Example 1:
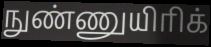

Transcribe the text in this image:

நுண்ணுயிரிக்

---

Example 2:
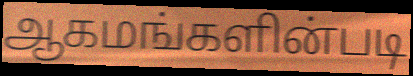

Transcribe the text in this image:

ஆகமங்களின்படி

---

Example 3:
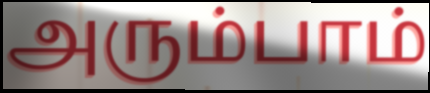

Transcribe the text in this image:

அரும்பாம்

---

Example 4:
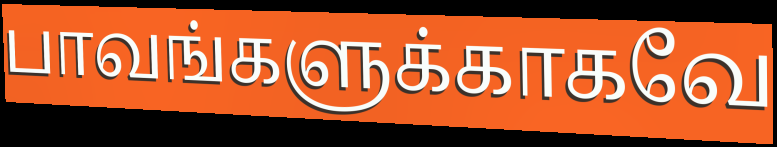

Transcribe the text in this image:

பாவங்களுக்காகவே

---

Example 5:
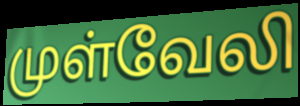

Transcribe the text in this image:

முள்வேலி